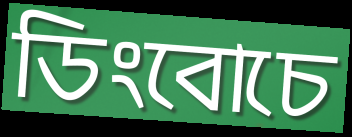
ডিংবোচে